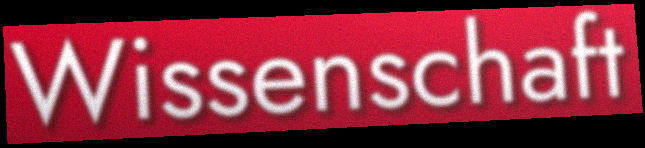
Wissenschaft